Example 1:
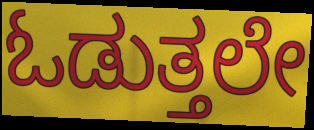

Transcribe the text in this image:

ಓಡುತ್ತಲೇ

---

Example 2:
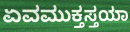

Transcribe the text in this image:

ಏವಮುಕ್ತಸ್ತಯಾ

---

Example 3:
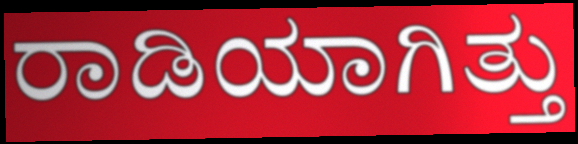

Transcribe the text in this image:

ರಾಡಿಯಾಗಿತ್ತು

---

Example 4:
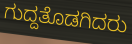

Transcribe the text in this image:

ಗುದ್ದತೊಡಗಿದರು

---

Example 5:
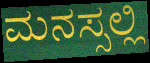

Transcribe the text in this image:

ಮನಸ್ಸಲ್ಲಿ